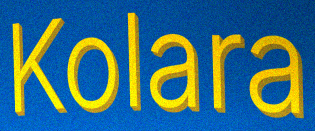
Kolara